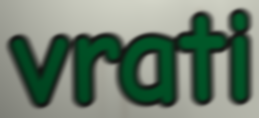
vrati